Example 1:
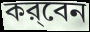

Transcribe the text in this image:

কর্‌বেন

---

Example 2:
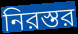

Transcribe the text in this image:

নিরস্তর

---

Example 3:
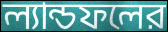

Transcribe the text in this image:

ল্যান্ডফলের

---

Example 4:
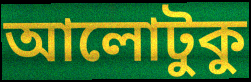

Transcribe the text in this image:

আলোটুকু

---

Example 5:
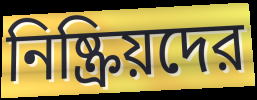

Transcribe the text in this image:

নিষ্ক্রিয়দের